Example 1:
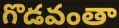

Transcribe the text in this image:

గొడవంతా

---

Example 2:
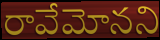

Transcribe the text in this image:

రావేమోనని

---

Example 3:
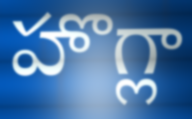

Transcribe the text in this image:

హొగ్లా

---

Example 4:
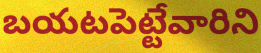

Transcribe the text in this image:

బయటపెట్టేవారిని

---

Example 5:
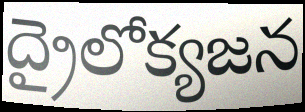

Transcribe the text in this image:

ద్రైలోక్యజన